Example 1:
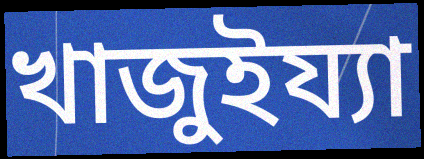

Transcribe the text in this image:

খাজুইয্যা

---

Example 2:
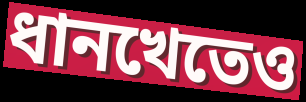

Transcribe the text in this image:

ধানখেতেও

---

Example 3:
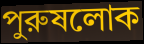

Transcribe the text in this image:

পুরুষলোক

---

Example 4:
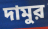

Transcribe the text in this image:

দামুর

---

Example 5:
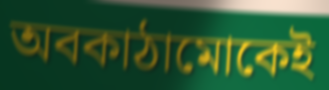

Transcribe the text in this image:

অবকাঠামোকেই